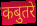
कबुतरे